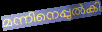
മന്നിനെപ്പുൽകി